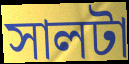
সালটা